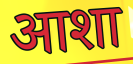
आशा